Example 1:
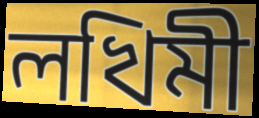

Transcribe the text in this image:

লখিমী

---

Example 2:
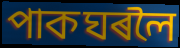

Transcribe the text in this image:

পাকঘৰলৈ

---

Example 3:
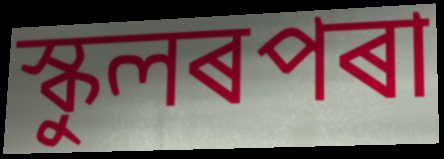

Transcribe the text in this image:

স্কুলৰপৰা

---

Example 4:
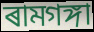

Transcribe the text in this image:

ৰামগঙ্গা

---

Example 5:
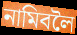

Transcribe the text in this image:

নামিবলৈ